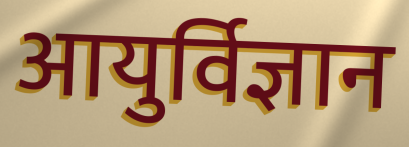
आयुर्विज्ञान